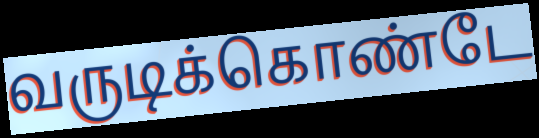
வருடிக்கொண்டே